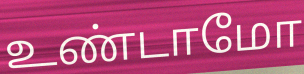
உண்டாமோ